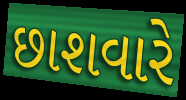
છાશવારે